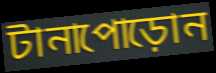
টানাপোড়োন